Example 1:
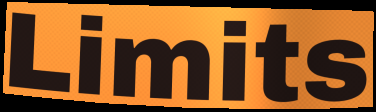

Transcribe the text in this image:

Limits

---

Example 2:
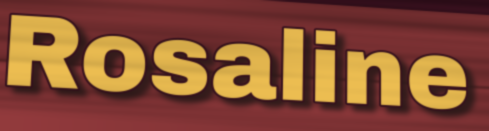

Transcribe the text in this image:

Rosaline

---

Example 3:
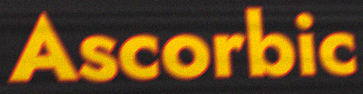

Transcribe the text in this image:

Ascorbic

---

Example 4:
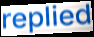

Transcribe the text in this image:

replied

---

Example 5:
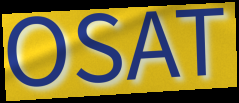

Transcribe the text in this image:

OSAT